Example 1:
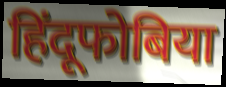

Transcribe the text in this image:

हिंदूफोबिया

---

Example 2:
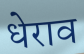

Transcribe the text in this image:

धेराव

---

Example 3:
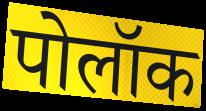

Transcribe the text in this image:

पोलॉक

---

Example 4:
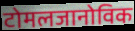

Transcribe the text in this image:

टोमलजानोविक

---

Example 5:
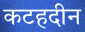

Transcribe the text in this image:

कटहदीन